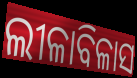
ଲୀଳାବିଳାସ